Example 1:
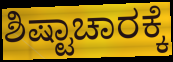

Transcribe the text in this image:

ಶಿಷ್ಟಾಚಾರಕ್ಕೆ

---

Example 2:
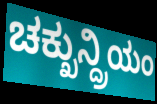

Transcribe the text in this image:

ಚಕ್ಖುನ್ದ್ರಿಯಂ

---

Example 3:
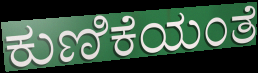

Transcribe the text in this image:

ಕುಣಿಕೆಯಂತೆ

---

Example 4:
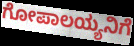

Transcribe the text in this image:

ಗೋಪಾಲಯ್ಯನಿಗೆ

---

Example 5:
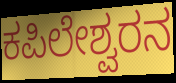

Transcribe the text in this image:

ಕಪಿಲೇಶ್ವರನ